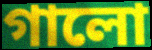
গালো